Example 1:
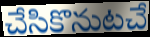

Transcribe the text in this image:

చేసికొనుటచే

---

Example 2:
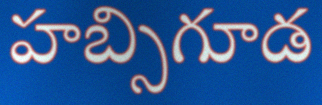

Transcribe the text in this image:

హబ్సిగూడ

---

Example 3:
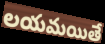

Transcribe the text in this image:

లయమయితే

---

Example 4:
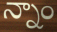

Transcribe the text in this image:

న్నాం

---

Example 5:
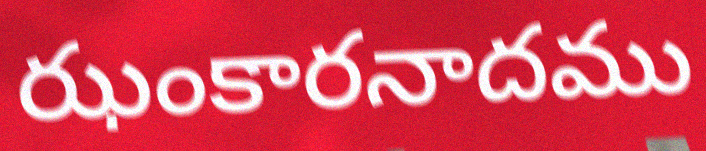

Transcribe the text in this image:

ఝంకారనాదము